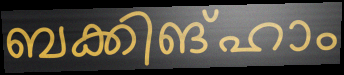
ബക്കിങ്ഹാം